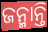
ଜନ୍ମାନ୍ତି